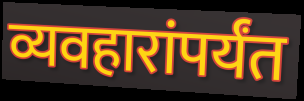
व्यवहारांपर्यंत